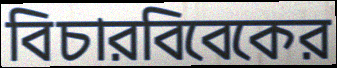
বিচারবিবেকের